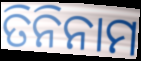
ତିନିନାମ